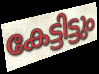
കേട്ടിട്ടും